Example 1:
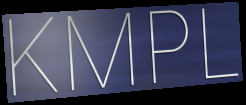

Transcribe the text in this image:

KMPL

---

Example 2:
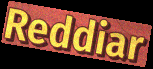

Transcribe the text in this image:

Reddiar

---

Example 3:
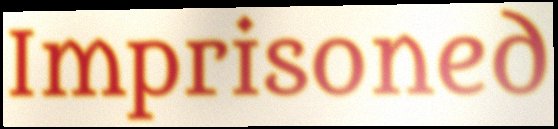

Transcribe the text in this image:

Imprisoned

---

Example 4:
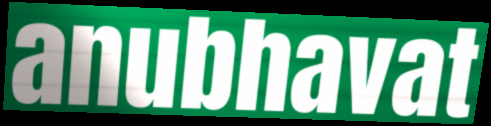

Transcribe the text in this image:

anubhavat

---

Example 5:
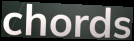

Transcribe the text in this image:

chords